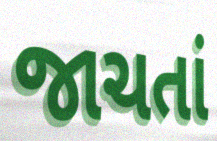
જાચતાં